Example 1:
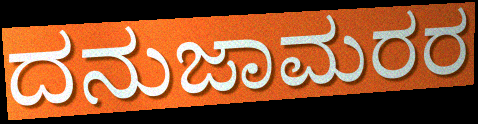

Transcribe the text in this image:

ದನುಜಾಮರರ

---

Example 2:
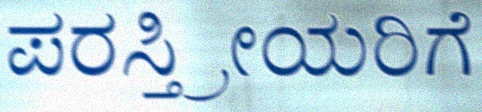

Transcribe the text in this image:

ಪರಸ್ತ್ರೀಯರಿಗೆ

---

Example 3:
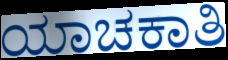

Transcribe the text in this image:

ಯಾಚಕಾತಿ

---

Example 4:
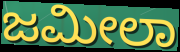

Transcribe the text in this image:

ಜಮೀಲಾ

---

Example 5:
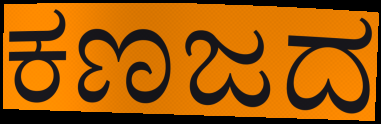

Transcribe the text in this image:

ಕಣಜದ